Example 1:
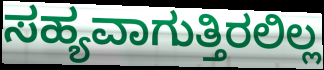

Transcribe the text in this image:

ಸಹ್ಯವಾಗುತ್ತಿರಲಿಲ್ಲ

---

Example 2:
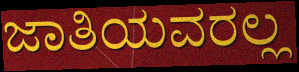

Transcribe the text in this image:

ಜಾತಿಯವರಲ್ಲ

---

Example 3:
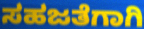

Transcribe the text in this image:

ಸಹಜತೆಗಾಗಿ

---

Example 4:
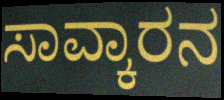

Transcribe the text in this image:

ಸಾವ್ಕಾರನ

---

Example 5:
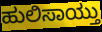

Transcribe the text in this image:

ಹುಲಿಸಾಯ್ತು